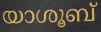
യാശൂബ്